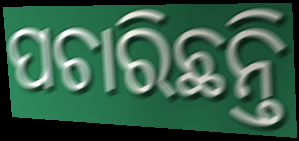
ପଚାରିଛନ୍ତି